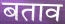
बताव